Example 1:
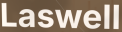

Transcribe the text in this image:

Laswell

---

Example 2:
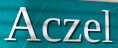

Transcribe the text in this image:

Aczel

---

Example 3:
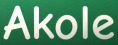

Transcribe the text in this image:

Akole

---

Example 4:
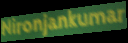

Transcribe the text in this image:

Nironjankumar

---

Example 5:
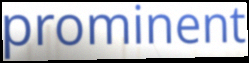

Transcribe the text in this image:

prominent